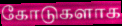
கோடுகளாக